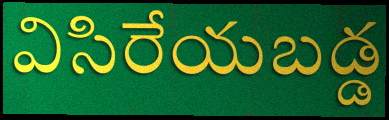
విసిరేయబడ్డ